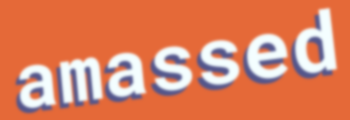
amassed